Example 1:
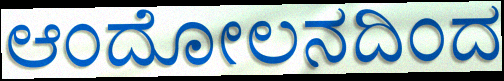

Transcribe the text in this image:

ಆಂದೋಲನದಿಂದ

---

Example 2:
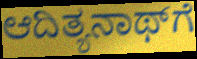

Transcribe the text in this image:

ಆದಿತ್ಯನಾಥ್‌ಗೆ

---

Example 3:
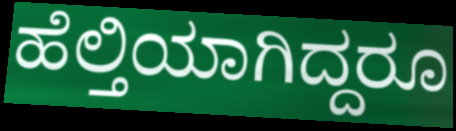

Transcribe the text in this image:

ಹೆಲ್ತಿಯಾಗಿದ್ದರೂ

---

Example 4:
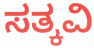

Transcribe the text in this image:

ಸತ್ಕವಿ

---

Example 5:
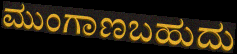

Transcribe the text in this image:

ಮುಂಗಾಣಬಹುದು